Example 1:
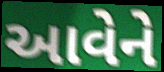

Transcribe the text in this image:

આવેને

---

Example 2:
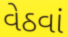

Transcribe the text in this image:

વેઠવાં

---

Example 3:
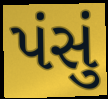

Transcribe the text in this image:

પંસું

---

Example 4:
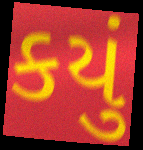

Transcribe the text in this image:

કયું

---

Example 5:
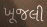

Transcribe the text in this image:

ખૂજલી